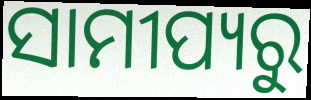
ସାମୀପ୍ୟରୁ